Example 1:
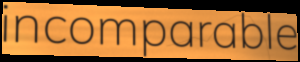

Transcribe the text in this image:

incomparable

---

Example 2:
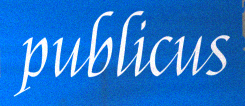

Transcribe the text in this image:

publicus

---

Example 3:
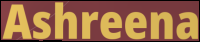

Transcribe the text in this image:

Ashreena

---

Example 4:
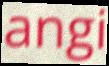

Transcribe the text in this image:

angi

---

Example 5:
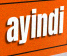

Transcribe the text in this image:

ayindi